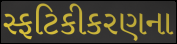
સ્ફટિકીકરણના